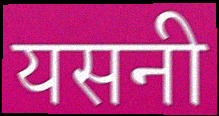
यसनी